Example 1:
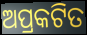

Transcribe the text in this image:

ଅପ୍ରକଟିତ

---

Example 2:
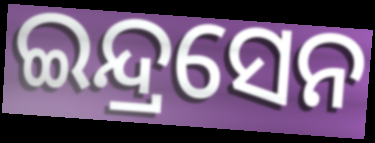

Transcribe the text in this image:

ଇନ୍ଦ୍ରସେନ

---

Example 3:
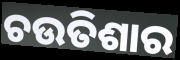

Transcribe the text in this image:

ଚଉତିଶାର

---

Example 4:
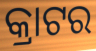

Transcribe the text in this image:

କ୍ରାଟର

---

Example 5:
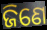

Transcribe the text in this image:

ଜିଣେ